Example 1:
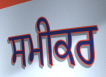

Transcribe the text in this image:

ਸਮੀਕਰ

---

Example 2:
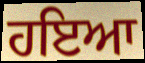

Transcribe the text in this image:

ਹਇਆ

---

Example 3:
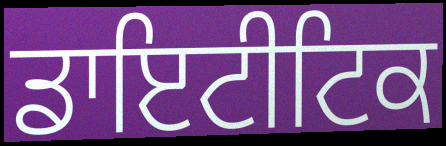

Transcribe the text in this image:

ਡਾਇਟੀਟਿਕ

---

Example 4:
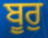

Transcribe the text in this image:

ਬੂਰੁ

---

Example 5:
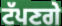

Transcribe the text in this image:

ਟੱਪਣਗੇ